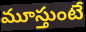
మూస్తుంటే